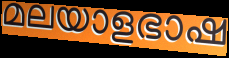
മലയാളഭാഷ